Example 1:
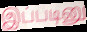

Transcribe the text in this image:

இப்படினு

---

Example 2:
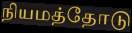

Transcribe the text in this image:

நியமத்தோடு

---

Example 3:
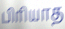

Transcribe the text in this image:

பிரியாத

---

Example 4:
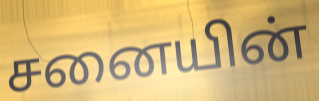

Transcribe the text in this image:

சனையின்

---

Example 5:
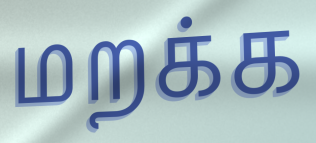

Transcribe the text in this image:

மறக்க